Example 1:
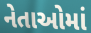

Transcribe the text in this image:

નેતાઓમાં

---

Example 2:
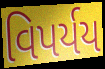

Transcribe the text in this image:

વિપર્યય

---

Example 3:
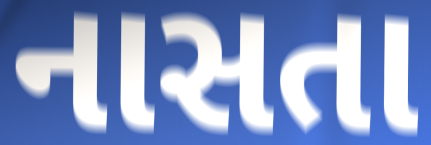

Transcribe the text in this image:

નાસતા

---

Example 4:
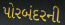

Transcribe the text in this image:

પોરબંદરની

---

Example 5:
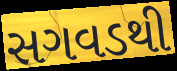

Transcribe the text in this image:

સગવડથી